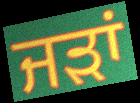
ਜੜਾਂ